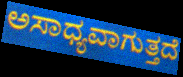
ಅಸಾಧ್ಯವಾಗುತ್ತದೆ